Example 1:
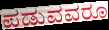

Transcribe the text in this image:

ಪಡುವವರೂ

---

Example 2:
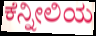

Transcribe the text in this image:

ಕೆನ್ನೀಲಿಯ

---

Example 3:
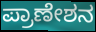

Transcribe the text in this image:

ಪ್ರಾಣೇಶನ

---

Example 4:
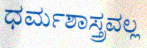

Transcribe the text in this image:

ಧರ್ಮಶಾಸ್ತ್ರವಲ್ಲ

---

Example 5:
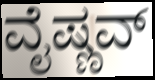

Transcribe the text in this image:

ವೈಷ್ಣವ್